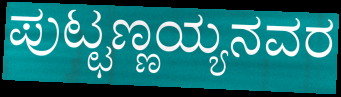
ಪುಟ್ಟಣ್ಣಯ್ಯನವರ